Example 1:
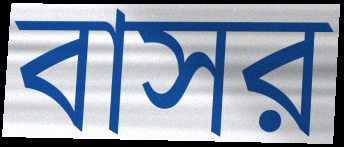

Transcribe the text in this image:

বাসর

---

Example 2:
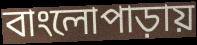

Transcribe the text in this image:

বাংলোপাড়ায়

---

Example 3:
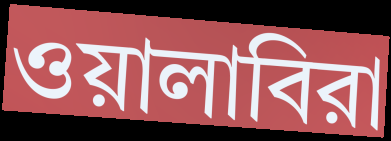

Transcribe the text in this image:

ওয়ালাবিরা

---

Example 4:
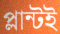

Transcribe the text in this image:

প্লান্টই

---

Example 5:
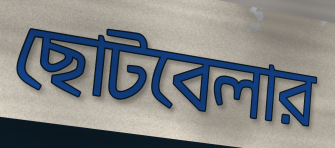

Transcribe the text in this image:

ছোটবেলার